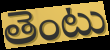
తెంటు